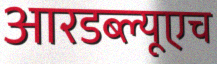
आरडब्ल्यूएच